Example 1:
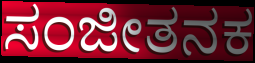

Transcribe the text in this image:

ಸಂಜೀತನಕ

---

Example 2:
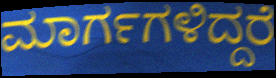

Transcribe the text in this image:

ಮಾರ್ಗಗಳಿದ್ದರೆ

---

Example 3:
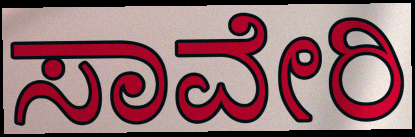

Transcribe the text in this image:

ಸಾವೇರಿ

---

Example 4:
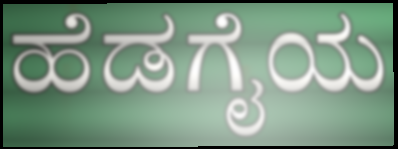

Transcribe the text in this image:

ಹೆಡಗೈಯ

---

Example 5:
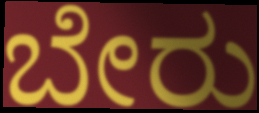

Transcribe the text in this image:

ಬೇರು